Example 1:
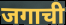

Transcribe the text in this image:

जगाची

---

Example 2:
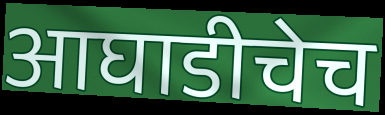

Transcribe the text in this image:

आघाडीचेच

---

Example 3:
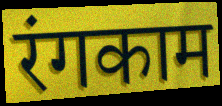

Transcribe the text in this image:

रंगकाम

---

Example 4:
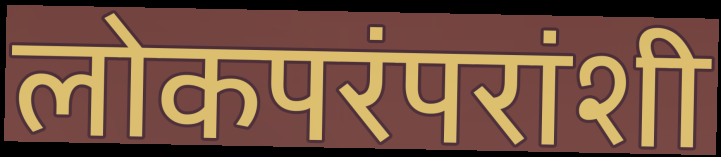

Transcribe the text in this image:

लोकपरंपरांशी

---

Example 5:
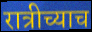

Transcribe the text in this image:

रात्रीच्याच